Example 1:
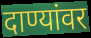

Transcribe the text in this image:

दाण्यांवर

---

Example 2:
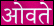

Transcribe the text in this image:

ओवते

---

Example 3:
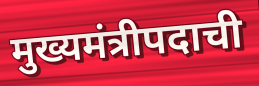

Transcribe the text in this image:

मुख्यमंत्रीपदाची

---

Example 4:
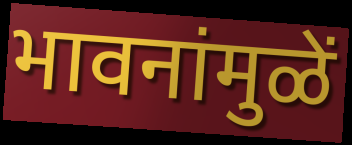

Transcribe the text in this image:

भावनांमुळें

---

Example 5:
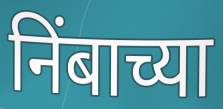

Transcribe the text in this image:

निंबाच्या